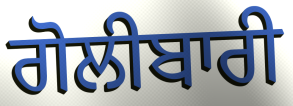
ਗੋਲੀਬਾਰੀ